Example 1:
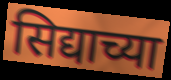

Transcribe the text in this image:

सिद्याच्या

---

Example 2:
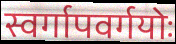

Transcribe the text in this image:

स्वर्गापवर्गयोः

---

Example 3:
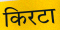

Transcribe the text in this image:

किरटा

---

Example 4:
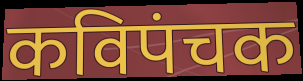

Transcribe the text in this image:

कविपंचक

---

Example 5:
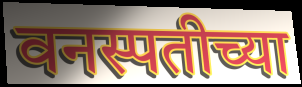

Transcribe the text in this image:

वनस्पतीच्या